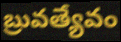
బ్రువత్యేవం